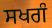
ਸਖਗੰ